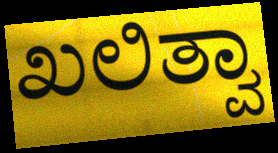
ಖಲಿತ್ವಾ